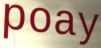
poay